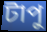
টাপু